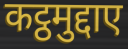
कट्ठमुद्दाए